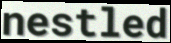
nestled